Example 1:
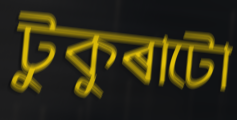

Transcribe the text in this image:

টুকুৰাটো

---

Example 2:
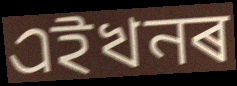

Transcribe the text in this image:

এইখনৰ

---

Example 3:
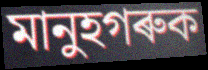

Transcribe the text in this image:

মানুহগৰুক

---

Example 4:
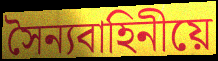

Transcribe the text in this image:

সৈন্যবাহিনীয়ে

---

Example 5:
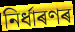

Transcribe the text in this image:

নিৰ্ধাৰণৰ